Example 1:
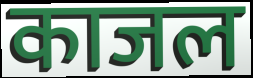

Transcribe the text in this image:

काजल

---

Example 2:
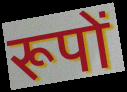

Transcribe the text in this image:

रूपों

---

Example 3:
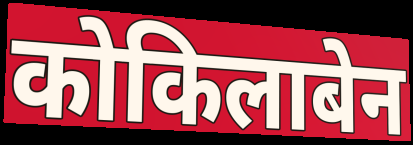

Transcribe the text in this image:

कोकिलाबेन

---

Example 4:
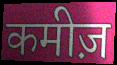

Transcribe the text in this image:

कमीज़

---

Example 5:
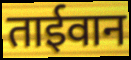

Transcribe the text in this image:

ताईवान